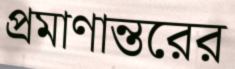
প্রমাণান্তরের